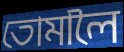
তোমালৈ